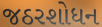
જઠરશોધન